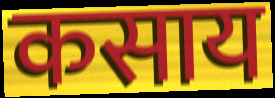
कसाय